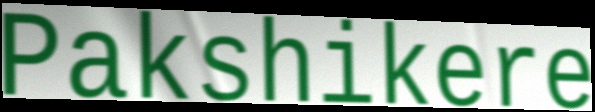
Pakshikere